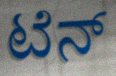
ಟೆನ್